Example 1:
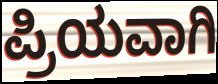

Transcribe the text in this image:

ಪ್ರಿಯವಾಗಿ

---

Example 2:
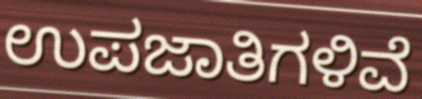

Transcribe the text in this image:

ಉಪಜಾತಿಗಳಿವೆ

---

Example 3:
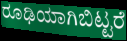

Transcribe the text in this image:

ರೂಢಿಯಾಗಿಬಿಟ್ಟರೆ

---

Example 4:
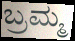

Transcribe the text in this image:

ಬ್ರಮ್ಮ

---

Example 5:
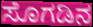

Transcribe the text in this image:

ಸೊಗಡಿನ